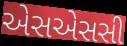
એસએસસી